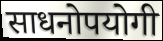
साधनोपयोगी